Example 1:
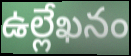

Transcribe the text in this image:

ఉల్లేఖనం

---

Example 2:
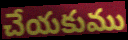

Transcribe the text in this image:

చేయకుము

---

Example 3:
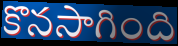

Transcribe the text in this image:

కొనసాగింది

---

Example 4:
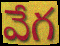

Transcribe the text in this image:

వేగ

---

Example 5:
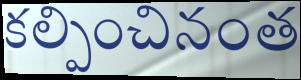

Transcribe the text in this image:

కల్పించినంత